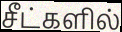
சீட்களில்